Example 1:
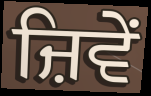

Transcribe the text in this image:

ਜ਼ਿਵੇਂ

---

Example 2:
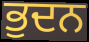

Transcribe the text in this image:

ਭੁਦਨ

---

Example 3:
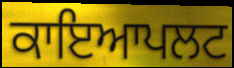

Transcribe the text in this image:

ਕਾਇਆਪਲਟ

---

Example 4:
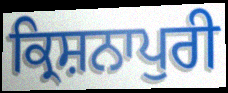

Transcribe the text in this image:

ਕ੍ਰਿਸ਼ਨਾਪੁਰੀ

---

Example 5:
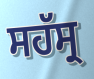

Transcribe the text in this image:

ਸਹੱਸ੍ਰ